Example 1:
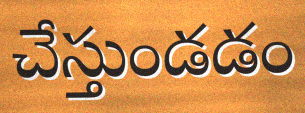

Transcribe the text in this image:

చేస్తుండడం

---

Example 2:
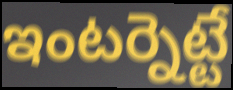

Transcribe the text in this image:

ఇంటర్నెట్టే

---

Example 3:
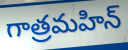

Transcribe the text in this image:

గాత్రమహిన్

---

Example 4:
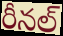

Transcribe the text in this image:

రీనల్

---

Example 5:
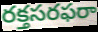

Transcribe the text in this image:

రక్తసరఫరా